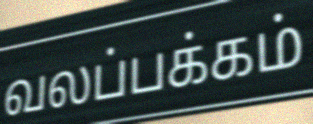
வலப்பக்கம்